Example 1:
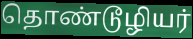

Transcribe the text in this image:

தொண்டூழியர்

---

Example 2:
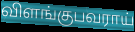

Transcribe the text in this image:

விளங்குபவராய்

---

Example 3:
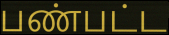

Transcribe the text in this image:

பண்பட்ட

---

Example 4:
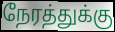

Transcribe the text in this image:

நேரத்துக்கு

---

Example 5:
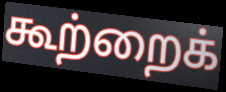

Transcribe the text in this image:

கூற்றைக்